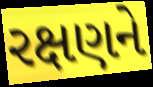
રક્ષણને